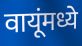
वायूंमध्ये